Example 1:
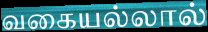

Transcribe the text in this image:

வகையல்லால்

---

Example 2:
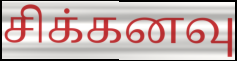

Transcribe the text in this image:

சிக்கனவு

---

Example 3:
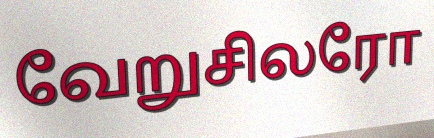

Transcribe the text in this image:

வேறுசிலரோ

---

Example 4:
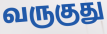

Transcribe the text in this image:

வருகுது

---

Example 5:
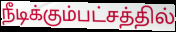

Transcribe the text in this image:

நீடிக்கும்பட்சத்தில்